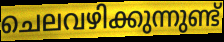
ചെലവഴിക്കുന്നുണ്ട്